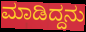
ಮಾಡಿದ್ದನು